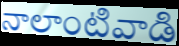
నాలాంటివాడి